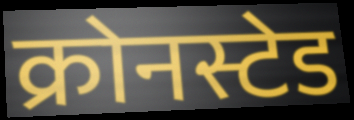
क्रोनस्टेड